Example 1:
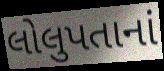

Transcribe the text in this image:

લોલુપતાનાં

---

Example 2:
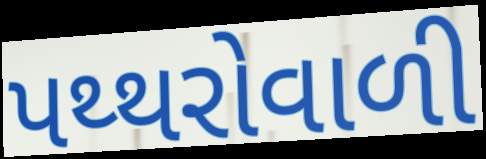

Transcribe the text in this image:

પથ્થરોવાળી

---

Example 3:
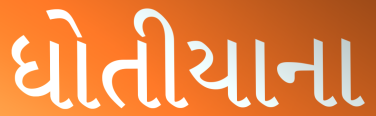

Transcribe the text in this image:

ધોતીયાના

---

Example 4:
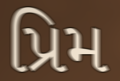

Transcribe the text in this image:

પ્રિમ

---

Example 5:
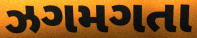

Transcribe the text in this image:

ઝગમગતા